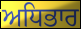
ਅਧਿਭਾਰ